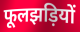
फूलझड़ियों